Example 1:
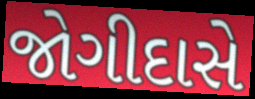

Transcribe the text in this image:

જોગીદાસે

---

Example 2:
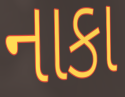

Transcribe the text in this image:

નાકા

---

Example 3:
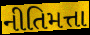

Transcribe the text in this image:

નીતિમત્તા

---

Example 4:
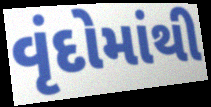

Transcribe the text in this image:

વૃંદોમાંથી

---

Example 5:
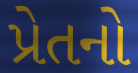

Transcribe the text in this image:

પ્રેતનો